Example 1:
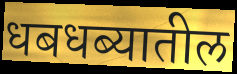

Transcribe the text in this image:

धबधब्यातील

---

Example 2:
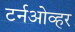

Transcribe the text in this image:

टर्नओव्हर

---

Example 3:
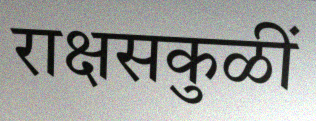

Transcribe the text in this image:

राक्षसकुळीं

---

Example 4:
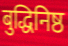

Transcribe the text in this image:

बुद्धिनिष्ठ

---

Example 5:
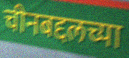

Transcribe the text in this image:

चीनबद्दलच्या